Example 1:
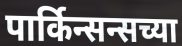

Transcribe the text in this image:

पार्किन्सन्सच्या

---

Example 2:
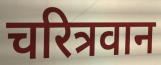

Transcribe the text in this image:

चरित्रवान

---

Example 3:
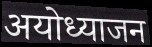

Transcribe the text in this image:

अयोध्याजन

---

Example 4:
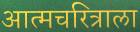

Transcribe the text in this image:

आत्मचरित्राला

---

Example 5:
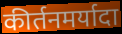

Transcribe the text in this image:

कीर्तनमर्यादा